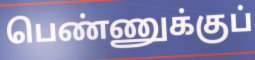
பெண்ணுக்குப்